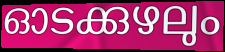
ഓടക്കുഴലും